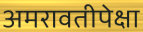
अमरावतीपेक्षा